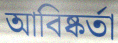
আবিষ্কর্তা